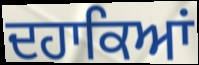
ਦਹਾਕਿਆਂ